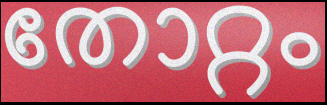
തോറ്റം